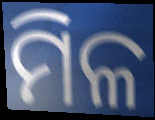
ମିଳ